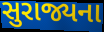
સુરાજ્યના